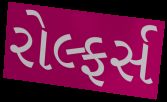
રોલ્ફર્સ